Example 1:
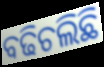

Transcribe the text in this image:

ବଢିଚଲିଛି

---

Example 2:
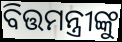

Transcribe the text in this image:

ବିତ୍ତମନ୍ତ୍ରୀଙ୍କୁ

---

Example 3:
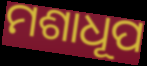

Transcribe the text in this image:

ମଶାଧୂପ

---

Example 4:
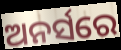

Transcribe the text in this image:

ଅନର୍ସରେ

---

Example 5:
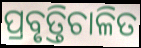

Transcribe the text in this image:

ପ୍ରବୃତ୍ତିଚାଳିତ